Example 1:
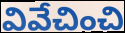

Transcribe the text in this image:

వివేచించి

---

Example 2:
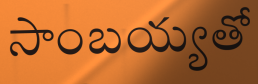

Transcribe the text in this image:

సాంబయ్యతో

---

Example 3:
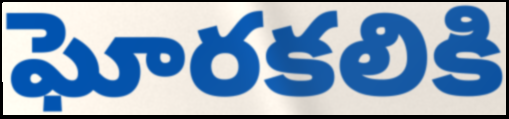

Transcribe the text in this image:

ఘోరకలికి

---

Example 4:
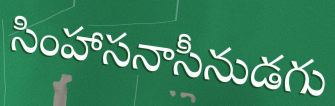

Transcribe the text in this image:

సింహాసనాసీనుడగు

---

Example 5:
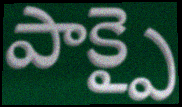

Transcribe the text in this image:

పాక్పై